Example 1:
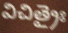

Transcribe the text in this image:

విచిత్రైః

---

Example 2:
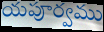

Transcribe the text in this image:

యపూర్వము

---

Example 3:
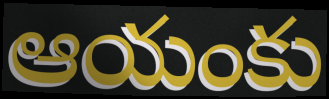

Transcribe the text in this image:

ఆయంకు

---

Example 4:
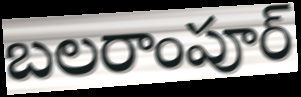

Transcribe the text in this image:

బలరాంపూర్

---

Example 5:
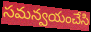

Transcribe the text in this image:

సమన్వయంచేసి